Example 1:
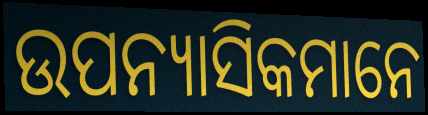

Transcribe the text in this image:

ଉପନ୍ୟାସିକମାନେ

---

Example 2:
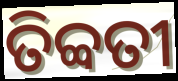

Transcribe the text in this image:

ତିବ୍ବତୀ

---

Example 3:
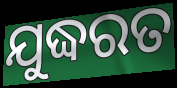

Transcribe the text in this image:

ଯୁଦ୍ଧରତ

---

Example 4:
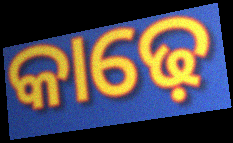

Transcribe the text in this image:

କାଢ଼େ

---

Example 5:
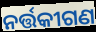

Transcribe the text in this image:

ନର୍ତ୍ତକୀଗଣ